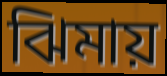
ঝিমায়